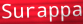
Surappa